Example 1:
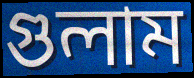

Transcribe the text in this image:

গুলাম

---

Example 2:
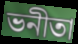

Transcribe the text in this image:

ভনীতা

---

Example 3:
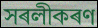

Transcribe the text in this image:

সৰলীকৰণ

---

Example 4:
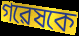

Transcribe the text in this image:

গৱেষকে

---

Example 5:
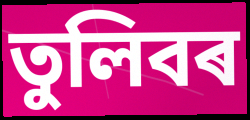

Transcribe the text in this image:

তুলিবৰ